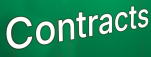
Contracts